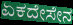
ಏಕದೇಸೇನ